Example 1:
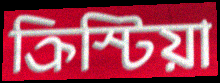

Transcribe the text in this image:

ক্রিস্টিয়া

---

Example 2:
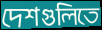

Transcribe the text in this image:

দেশগুলিতে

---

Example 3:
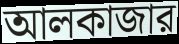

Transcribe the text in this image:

আলকাজার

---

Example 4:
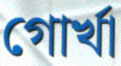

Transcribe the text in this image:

গোর্খা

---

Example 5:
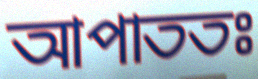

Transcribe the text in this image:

আপাততঃ